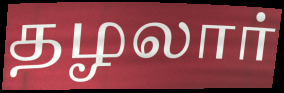
தழலார்